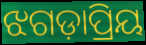
ଝଗଡ଼ାପ୍ରିୟ